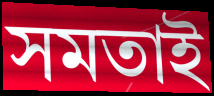
সমতাই